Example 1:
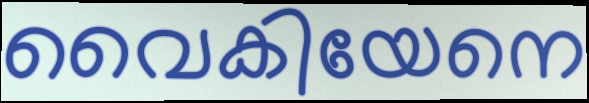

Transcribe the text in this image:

വൈകിയേനെ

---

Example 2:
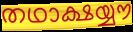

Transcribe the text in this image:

തഥാക്ഷയ്യൗ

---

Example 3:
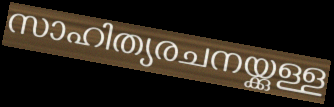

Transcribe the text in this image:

സാഹിത്യരചനയ്ക്കുള്ള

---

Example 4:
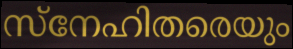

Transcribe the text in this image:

സ്നേഹിതരെയും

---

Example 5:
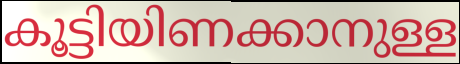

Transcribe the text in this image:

കൂട്ടിയിണക്കാനുള്ള